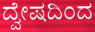
ದ್ವೇಷದಿಂದ